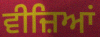
ਵੀਜ਼ਿਆਂ